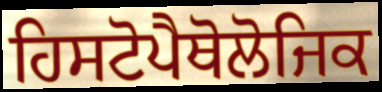
ਹਿਸਟੋਪੈਥੋਲੋਜਿਕ